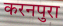
करनपुरा